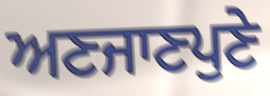
ਅਣਜਾਣਪੁਣੇ